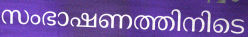
സംഭാഷണത്തിനിടെ